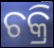
ଚକ୍ରି